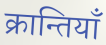
क्रान्तियाँ